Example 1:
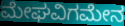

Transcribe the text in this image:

ಮೇಘವಿಗಮೇನ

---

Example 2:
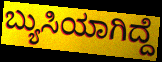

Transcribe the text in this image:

ಬ್ಯುಸಿಯಾಗಿದ್ದೆ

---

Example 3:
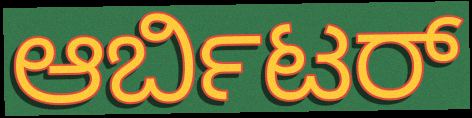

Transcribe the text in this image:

ಆರ್ಬಿಟರ್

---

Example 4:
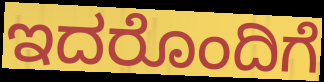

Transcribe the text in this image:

ಇದರೊಂದಿಗೆ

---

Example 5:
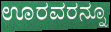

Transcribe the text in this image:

ಊರವರನ್ನೂ